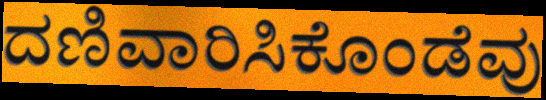
ದಣಿವಾರಿಸಿಕೊಂಡೆವು